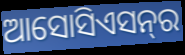
ଆସୋସିଏସନ୍‍ର